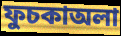
ফুচকাঅলা